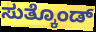
ಸುತ್ಕೊಂಡ್